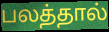
பலத்தால்